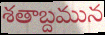
శతాబ్దమున